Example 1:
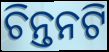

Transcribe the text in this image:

ଚିନ୍ତନଟି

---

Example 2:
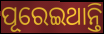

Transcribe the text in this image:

ପୂରେଇଥାନ୍ତି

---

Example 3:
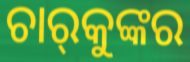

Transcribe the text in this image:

ଚାର୍‌କୁଙ୍କର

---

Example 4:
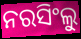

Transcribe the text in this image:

ନରସିଂଲୁ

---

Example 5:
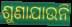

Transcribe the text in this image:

ଶୁଣାଯାଉନି